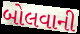
બોલવાની